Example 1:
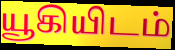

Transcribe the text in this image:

யூகியிடம்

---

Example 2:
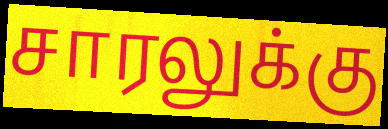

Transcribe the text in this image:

சாரலுக்கு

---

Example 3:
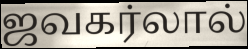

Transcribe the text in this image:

ஜவகர்லால்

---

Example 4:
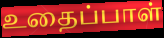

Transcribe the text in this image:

உதைப்பாள்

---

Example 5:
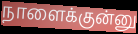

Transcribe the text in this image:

நாளைக்குன்னு